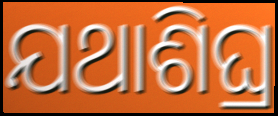
ଯଥାଶିଘ୍ର